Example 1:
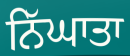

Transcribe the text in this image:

ਨਿੱਘਾਤਾ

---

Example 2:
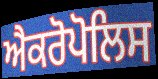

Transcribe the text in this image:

ਐਕਰੋਪੋਲਿਸ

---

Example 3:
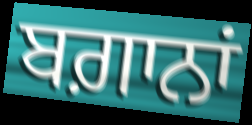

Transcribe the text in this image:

ਬਗ਼ਾਨਾਂ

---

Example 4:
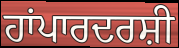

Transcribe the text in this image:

ਹਾਂਪਾਰਦਰਸ਼ੀ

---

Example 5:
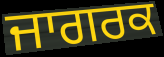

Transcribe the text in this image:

ਜਾਗਰਕ